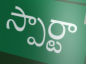
స్పార్టా